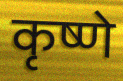
कृष्णे